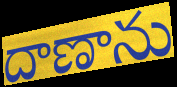
దాణాను